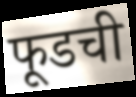
फूडची